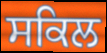
ਸਕਿਲ